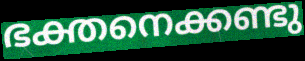
ഭക്തനെക്കണ്ടു